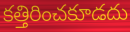
కత్తిరించకూడదు